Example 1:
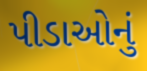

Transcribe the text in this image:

પીડાઓનું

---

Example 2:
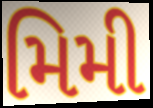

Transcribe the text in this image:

મિમી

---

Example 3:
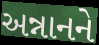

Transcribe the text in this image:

અન્નાનને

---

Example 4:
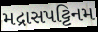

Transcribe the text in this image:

મદ્રાસપટ્ટિનમ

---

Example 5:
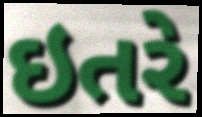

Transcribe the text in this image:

ઇતરે